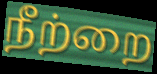
நீற்றை